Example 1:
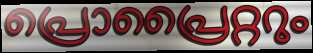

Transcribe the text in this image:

പ്രൊപ്രൈറ്ററും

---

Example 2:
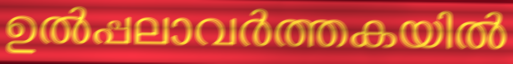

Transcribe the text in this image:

ഉൽപ്പലാവർത്തകയിൽ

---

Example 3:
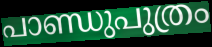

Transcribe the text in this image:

പാണ്ഡുപുത്രം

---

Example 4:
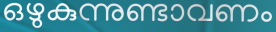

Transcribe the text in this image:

ഒഴുകുന്നുണ്ടാവണം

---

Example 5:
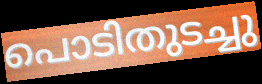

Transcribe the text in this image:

പൊടിതുടച്ചു